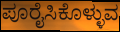
ಪೂರೈಸಿಕೊಳ್ಳುವ